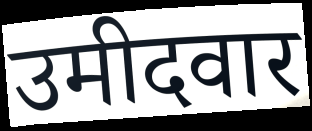
उमीदवार